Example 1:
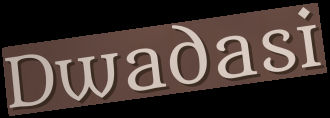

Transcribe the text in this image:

Dwadasi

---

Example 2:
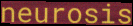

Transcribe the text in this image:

neurosis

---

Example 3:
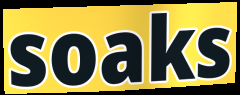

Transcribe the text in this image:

soaks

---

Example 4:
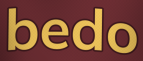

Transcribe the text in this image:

bedo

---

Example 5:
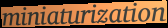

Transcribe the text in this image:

miniaturization